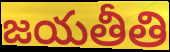
జయతీతి